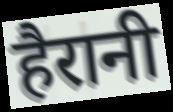
हैरानी